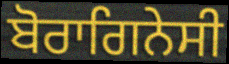
ਬੋਰਾਗਿਨੇਸੀ